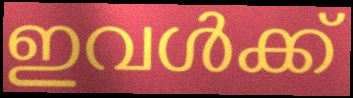
ഇവൾക്ക്